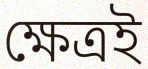
ক্ষেত্ৰই